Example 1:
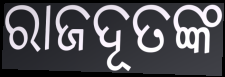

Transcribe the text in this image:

ରାଜଦୂତଙ୍କ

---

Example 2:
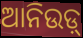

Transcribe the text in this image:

ଆନିଉଡ଼୍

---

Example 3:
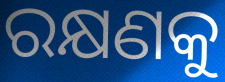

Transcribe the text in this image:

ରକ୍ଷଣକୁ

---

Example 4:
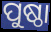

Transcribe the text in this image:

ପୁଷ୍ଠା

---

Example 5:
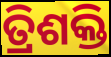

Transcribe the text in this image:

ତ୍ରିଶକ୍ତି